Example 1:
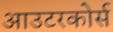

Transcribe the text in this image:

आउटरकोर्स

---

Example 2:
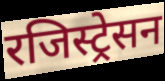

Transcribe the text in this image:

रजिस्ट्रेसन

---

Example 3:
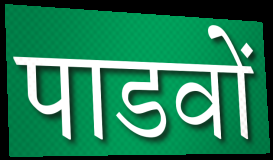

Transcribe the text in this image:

पाडवों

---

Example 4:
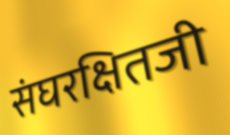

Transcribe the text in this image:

संघरक्षितजी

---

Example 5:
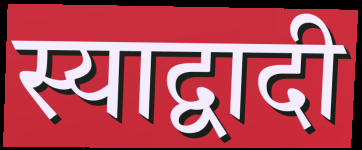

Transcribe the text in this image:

स्याद्वादी